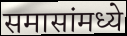
समासांमध्ये